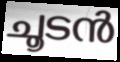
ചൂടൻ